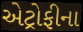
એટ્રોફીના